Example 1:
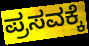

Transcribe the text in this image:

ಪ್ರಸವಕ್ಕೆ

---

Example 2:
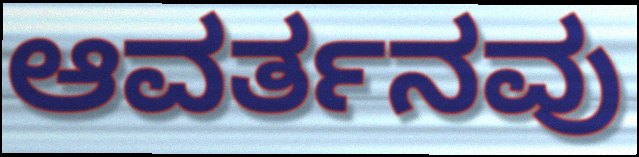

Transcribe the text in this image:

ಆವರ್ತನವು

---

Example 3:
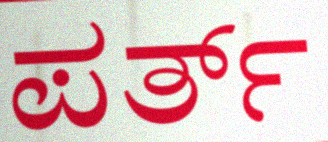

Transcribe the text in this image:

ಪರ್ತ್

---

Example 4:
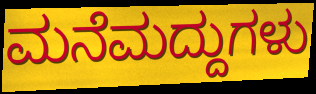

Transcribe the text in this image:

ಮನೆಮದ್ದುಗಳು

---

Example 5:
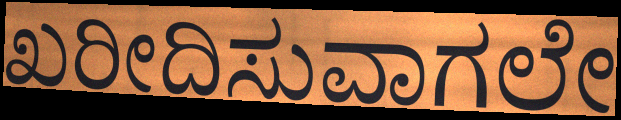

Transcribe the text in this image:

ಖರೀದಿಸುವಾಗಲೇ